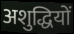
अशुद्धियों